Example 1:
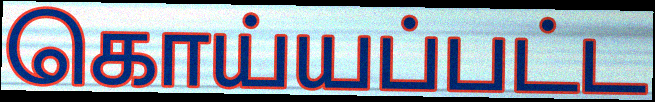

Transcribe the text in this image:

கொய்யப்பட்ட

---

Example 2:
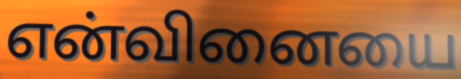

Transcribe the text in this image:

என்வினையை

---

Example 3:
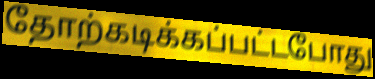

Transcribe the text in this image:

தோற்கடிக்கப்பட்டபோது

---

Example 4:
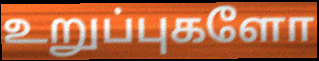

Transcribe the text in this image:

உறுப்புகளோ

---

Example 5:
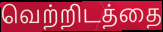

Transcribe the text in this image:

வெற்றிடத்தை